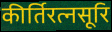
कीर्तिरत्नसूरि